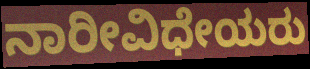
ನಾರೀವಿಧೇಯರು